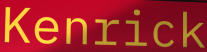
Kenrick